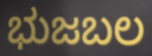
ಭುಜಬಲ